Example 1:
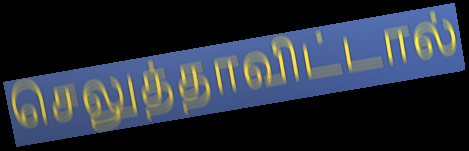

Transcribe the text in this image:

செலுத்தாவிட்டால்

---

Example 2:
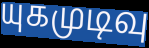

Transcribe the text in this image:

யுகமுடிவு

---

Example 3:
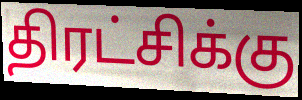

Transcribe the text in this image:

திரட்சிக்கு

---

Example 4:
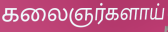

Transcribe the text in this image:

கலைஞர்களாய்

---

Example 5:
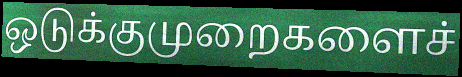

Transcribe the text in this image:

ஒடுக்குமுறைகளைச்